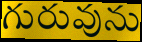
గురువును